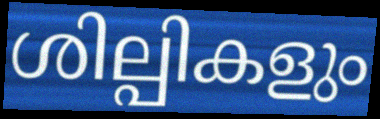
ശില്പികളും